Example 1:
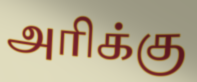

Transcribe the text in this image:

அரிக்கு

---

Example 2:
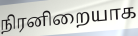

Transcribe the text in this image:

நிரனிறையாக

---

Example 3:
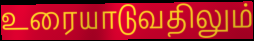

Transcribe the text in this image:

உரையாடுவதிலும்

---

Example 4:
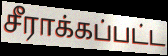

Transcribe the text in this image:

சீராக்கப்பட்ட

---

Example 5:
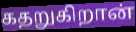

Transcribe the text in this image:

கதறுகிறான்